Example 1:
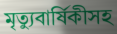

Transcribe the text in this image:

মৃত্যুবার্ষিকীসহ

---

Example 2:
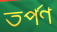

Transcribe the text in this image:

তর্পণ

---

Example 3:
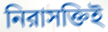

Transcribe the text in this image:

নিরাসক্তিই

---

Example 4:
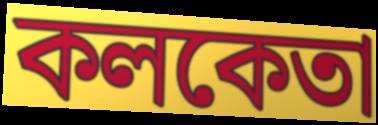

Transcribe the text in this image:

কলকেতা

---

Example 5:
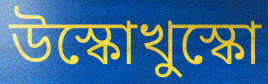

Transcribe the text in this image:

উস্কোখুস্কো